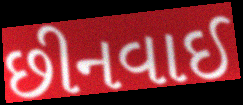
છીનવાઈ